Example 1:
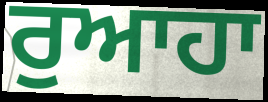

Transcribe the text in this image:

ਰੁਆਹਾ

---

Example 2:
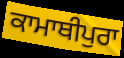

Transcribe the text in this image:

ਕਾਮਾਥੀਪੁਰਾ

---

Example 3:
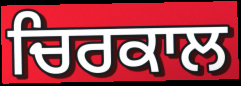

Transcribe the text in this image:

ਚਿਰਕਾਲ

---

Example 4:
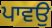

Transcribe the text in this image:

ਪਾਵਉ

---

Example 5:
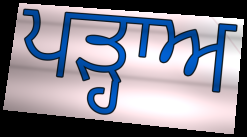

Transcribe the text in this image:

ਪੜ੍ਹਾਅ